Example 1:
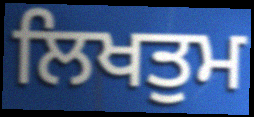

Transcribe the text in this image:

ਲਿਖਤੁਮ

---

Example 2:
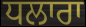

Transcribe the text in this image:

ਧਲਾਰਾ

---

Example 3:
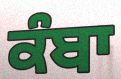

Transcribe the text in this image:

ਕੰਬਾ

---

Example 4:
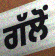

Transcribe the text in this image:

ਗੱਲੋਂ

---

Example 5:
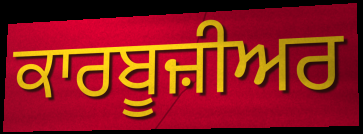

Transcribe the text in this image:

ਕਾਰਬੂਜ਼ੀਅਰ